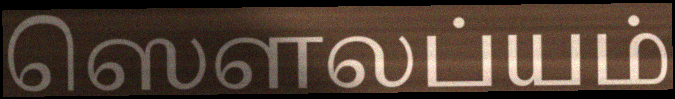
ஸௌலப்யம்